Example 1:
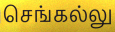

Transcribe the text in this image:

செங்கல்லு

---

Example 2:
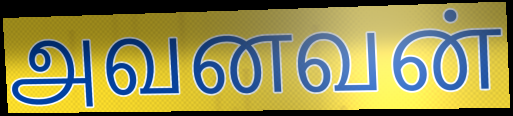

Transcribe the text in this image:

அவனவன்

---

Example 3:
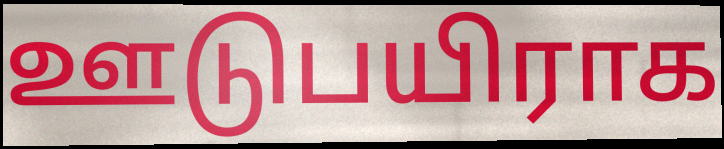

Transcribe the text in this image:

ஊடுபயிராக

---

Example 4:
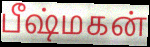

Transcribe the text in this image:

பீஷ்மகன்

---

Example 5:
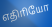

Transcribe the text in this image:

எதிரியோ